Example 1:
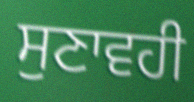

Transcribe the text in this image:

ਸੁਣਾਵਹੀ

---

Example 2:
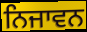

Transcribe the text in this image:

ਨਿਜਾਵਨ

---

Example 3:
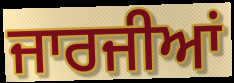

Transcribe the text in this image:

ਜਾਰਜੀਆਂ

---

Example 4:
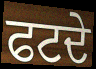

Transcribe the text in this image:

ਫਟਦੇ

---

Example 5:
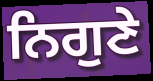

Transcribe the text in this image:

ਨਿਗੁਣੇ